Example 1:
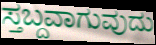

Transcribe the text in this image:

ಸ್ತಬ್ದವಾಗುವುದು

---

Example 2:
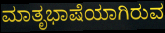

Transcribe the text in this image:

ಮಾತೃಭಾಷೆಯಾಗಿರುವ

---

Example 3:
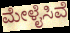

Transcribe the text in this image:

ಮೇಳೈಸಿವೆ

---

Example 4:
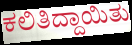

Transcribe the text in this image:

ಕಲಿತಿದ್ದಾಯಿತು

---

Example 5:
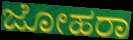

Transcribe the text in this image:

ಜೋಹರಾ